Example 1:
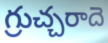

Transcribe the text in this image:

గ్రుచ్చరాదె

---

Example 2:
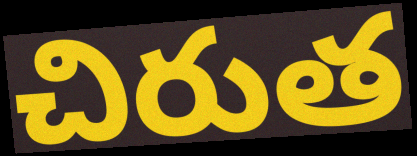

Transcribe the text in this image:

చిరుత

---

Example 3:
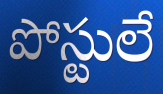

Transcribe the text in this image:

పోస్టులే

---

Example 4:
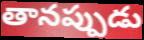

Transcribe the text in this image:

తానప్పుడు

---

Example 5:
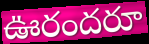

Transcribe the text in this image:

ఊరందరూ